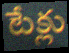
టేక్లు